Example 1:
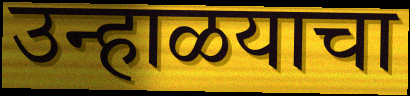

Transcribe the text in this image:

उन्हाळयाचा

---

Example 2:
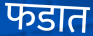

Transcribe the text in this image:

फडात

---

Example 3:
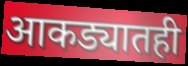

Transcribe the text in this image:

आकड्यातही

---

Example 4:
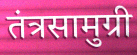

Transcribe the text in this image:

तंत्रसामुग्री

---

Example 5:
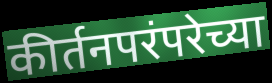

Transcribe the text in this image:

कीर्तनपरंपरेच्या